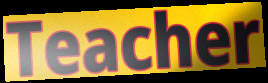
Teacher